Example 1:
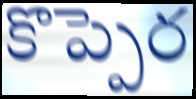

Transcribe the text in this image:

కొప్పెర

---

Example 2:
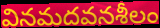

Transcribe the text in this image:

వినమదవనశీలం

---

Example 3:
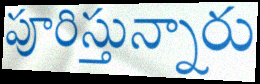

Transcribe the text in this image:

పూరిస్తున్నారు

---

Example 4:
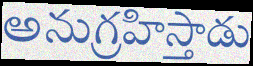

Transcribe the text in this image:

అనుగ్రహిస్తాడు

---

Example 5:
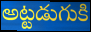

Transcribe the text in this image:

అట్టడుగుకి